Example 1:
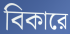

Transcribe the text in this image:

বিকারে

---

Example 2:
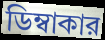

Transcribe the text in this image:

ডিম্বাকার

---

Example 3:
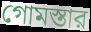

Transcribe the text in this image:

গোমস্তার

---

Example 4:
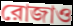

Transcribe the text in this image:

রোজাও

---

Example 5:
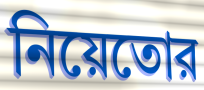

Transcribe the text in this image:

নিয়েতোর